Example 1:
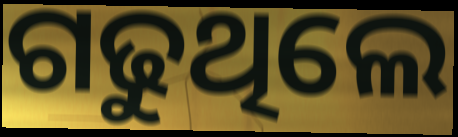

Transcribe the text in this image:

ଗଢୁଥିଲେ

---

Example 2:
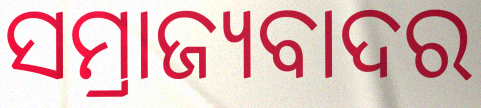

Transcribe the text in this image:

ସମ୍ରାଜ୍ୟବାଦର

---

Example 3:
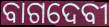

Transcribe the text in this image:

ବାଗଦେବୀ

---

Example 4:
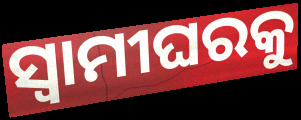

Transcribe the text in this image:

ସ୍ୱାମୀଘରକୁ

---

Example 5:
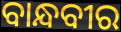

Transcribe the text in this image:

ବାନ୍ଧବୀର